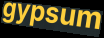
gypsum